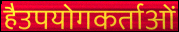
हैउपयोगकर्ताओं